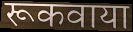
रूकवाया